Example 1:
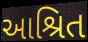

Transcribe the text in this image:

આશ્રિત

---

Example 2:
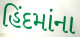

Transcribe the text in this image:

હિંદમાંના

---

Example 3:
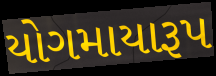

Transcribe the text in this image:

યોગમાયારૂપ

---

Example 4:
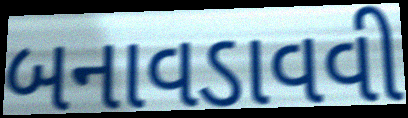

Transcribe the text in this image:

બનાવડાવવી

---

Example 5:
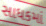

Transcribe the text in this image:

સાધકમાં